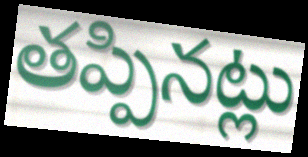
తప్పినట్లు